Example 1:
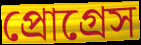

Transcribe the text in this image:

প্রোগ্রেস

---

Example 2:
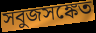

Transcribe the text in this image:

সবুজসঙ্কেত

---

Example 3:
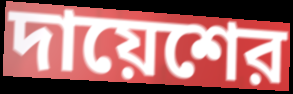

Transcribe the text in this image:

দায়েশের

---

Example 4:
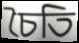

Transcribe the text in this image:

চৈতি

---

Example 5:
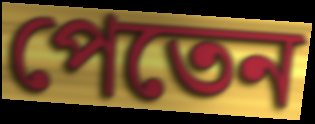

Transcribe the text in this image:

পেতেন